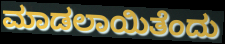
ಮಾಡಲಾಯಿತೆಂದು